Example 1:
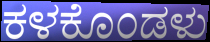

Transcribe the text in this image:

ಕಳಕೊಂಡಳು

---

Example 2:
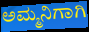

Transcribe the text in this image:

ಅಮ್ಮನಿಗಾಗಿ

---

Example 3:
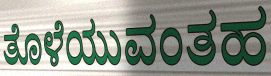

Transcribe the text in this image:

ತೊಳೆಯುವಂತಹ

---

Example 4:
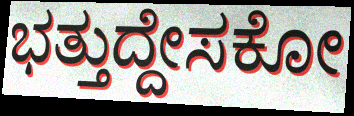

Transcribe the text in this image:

ಭತ್ತುದ್ದೇಸಕೋ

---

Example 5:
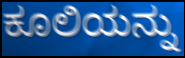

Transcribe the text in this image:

ಕೂಲಿಯನ್ನು